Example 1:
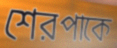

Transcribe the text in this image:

শেরপাকে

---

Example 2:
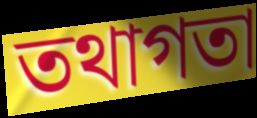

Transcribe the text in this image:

তথাগতা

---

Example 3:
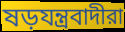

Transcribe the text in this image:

ষড়যন্ত্রবাদীরা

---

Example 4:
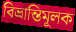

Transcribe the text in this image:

বিভ্রান্তিমূলক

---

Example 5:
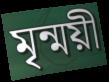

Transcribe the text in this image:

মৃন্ময়ী